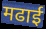
मढाई